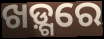
ଖଡ଼୍ଗରେ